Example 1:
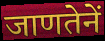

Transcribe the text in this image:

जाणतेनें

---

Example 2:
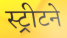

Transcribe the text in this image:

स्ट्रीटने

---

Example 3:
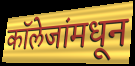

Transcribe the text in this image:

कॉलेजांमधून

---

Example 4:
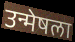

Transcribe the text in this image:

उन्मेषला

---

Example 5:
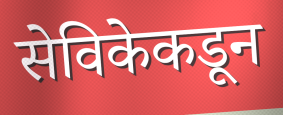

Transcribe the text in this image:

सेविकेकडून